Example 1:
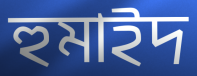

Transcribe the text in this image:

হুমাইদ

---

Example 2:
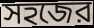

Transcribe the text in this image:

সহজের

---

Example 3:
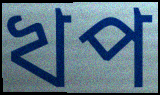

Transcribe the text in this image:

খপ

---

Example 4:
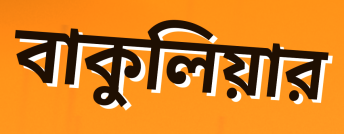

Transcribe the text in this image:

বাকুলিয়ার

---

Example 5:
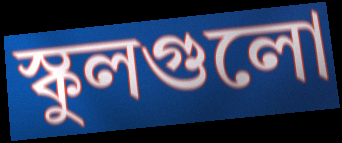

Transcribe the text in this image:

স্কুলগুলো